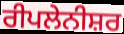
ਰੀਪਲੇਨੀਸ਼ਰ